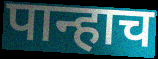
पान्हाच